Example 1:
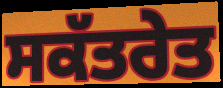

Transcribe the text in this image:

ਸਕੱਤਰੇਤ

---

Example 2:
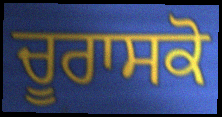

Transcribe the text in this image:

ਚੂਰਾਸਕੋ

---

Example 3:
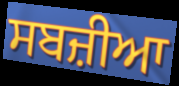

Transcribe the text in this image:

ਸਬਜ਼ੀਆ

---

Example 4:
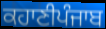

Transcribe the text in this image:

ਕਹਾਣੀਪੰਜਾਬ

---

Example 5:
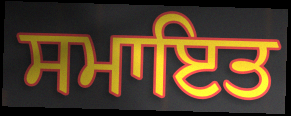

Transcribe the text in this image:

ਸਮਾਇਤ